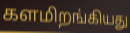
களமிறங்கியது